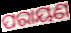
ପରାୟଣ